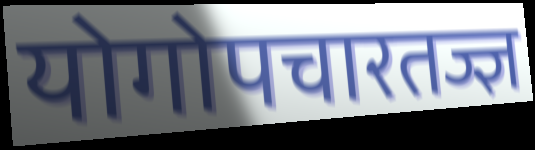
योगोपचारतज्ज्ञ